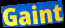
Gaint